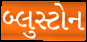
બ્લુસ્ટોન